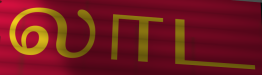
லாட